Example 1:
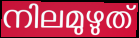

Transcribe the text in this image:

നിലമുഴുത്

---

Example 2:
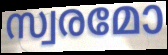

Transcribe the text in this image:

സ്വരമോ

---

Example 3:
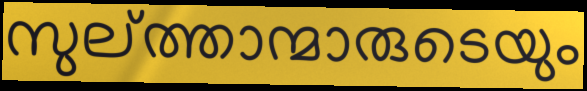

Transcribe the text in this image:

സുല്ത്താന്മാരുടെയും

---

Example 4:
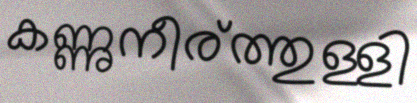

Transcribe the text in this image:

കണ്ണുനീര്ത്തുള്ളി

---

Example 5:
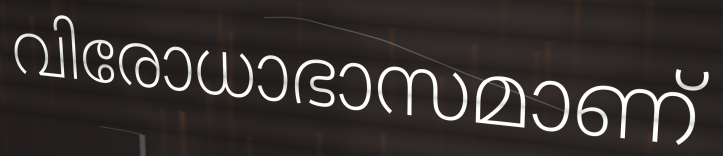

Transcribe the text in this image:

വിരോധാഭാസമാണ്